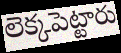
లెక్కపెట్టారు